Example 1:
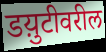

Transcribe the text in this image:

डय़ुटीवरील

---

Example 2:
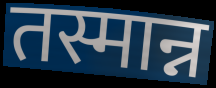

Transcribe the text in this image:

तस्मान्न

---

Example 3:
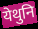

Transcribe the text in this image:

येथुनि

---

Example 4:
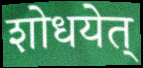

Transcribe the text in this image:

शोधयेत्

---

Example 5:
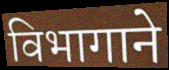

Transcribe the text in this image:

विभागाने